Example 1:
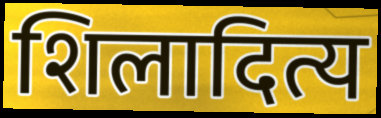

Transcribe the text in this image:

शिलादित्य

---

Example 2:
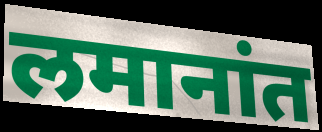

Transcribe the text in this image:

लमानांत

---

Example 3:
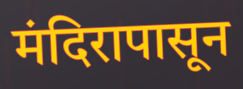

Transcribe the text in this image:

मंदिरापासून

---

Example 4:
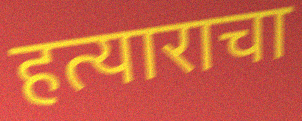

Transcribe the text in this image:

हत्याराचा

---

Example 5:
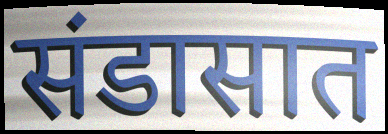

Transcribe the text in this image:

संडासात